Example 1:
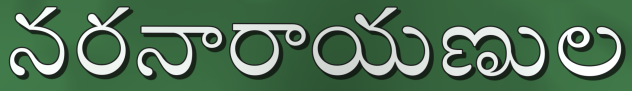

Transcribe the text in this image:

నరనారాయణుల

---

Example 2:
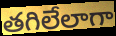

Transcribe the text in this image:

తగిలేలాగా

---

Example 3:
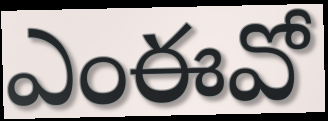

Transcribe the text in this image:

ఎంఈవో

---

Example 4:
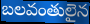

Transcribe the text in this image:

బలవంతులైన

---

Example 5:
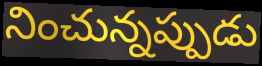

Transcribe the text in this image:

నించున్నప్పుడు